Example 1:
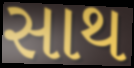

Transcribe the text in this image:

સાથ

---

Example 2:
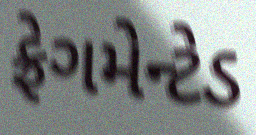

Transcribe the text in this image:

ફ્રેગમેન્ટેડ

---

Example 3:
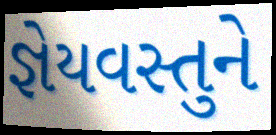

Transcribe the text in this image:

જ્ઞેયવસ્તુને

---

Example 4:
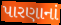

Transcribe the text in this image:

પારણાનાં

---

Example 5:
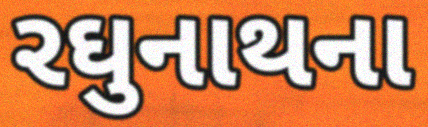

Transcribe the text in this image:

રઘુનાથના